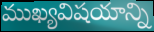
ముఖ్యవిషయాన్ని